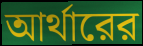
আর্থারের